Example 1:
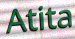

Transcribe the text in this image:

Atita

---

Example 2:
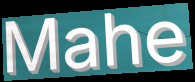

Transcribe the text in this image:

Mahe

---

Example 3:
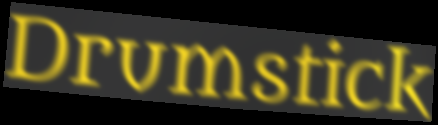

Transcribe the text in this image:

Drumstick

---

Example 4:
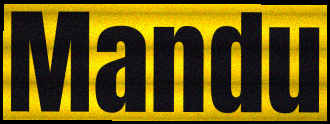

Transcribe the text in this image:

Mandu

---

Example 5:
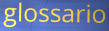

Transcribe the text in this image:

glossario